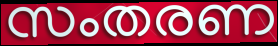
സംതരണ